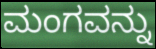
ಮಂಗವನ್ನು